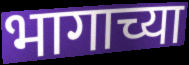
भागाच्या